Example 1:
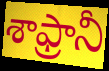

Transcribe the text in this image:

శాఫ్రానీ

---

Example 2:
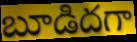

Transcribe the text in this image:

బూడిదగా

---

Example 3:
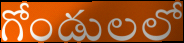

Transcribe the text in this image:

గోండులలో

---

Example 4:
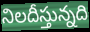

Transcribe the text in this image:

నిలదీస్తున్నది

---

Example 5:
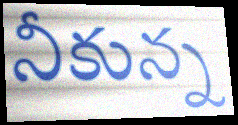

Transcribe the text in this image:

నీకున్న